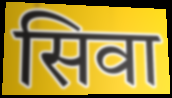
सिवा